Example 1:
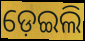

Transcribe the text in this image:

ଡ଼େଇଲି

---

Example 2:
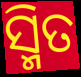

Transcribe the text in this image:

ସ୍ମିତ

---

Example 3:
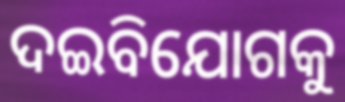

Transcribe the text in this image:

ଦଇବିଯୋଗକୁ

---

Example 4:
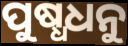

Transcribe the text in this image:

ପୁଷ୍ଧଧନୁ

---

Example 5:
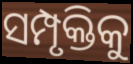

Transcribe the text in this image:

ସମ୍ପୃକ୍ତିକୁ